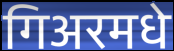
गिअरमधे